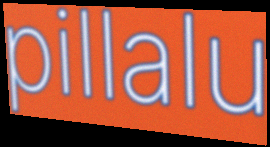
pillalu